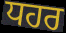
ਧਹਰ